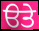
ੳਤੇ